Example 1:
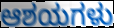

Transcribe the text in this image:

ಆಶಯಗಳು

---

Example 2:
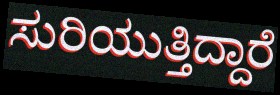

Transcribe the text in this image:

ಸುರಿಯುತ್ತಿದ್ದಾರೆ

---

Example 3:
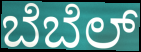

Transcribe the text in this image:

ಬೆಬೆಲ್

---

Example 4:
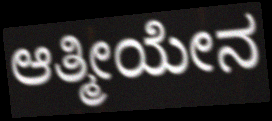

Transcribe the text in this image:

ಆತ್ಮೀಯೇನ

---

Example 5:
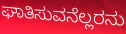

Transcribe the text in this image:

ಘಾತಿಸುವನೆಲ್ಲರನು